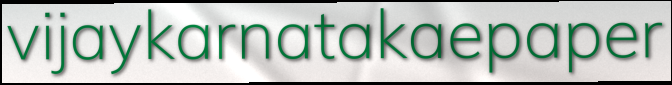
vijaykarnatakaepaper